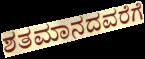
ಶತಮಾನದವರೆಗೆ